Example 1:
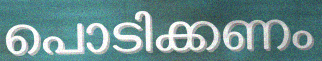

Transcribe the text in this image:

പൊടിക്കണം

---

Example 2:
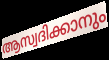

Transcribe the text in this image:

ആസ്വദിക്കാനും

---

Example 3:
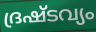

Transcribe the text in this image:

ദ്രഷ്ടവ്യം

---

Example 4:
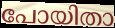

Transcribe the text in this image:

പോയിതാ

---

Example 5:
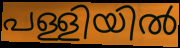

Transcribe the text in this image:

പള്ളിയിൽ